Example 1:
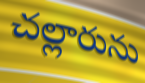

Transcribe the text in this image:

చల్లారును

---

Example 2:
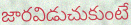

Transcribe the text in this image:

జారవిడుచుకుంటే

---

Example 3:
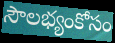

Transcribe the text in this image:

సౌలభ్యంకోసం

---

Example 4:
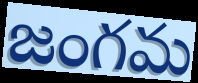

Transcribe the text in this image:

జంగమ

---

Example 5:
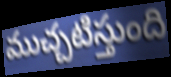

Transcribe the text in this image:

ముచ్చటిస్తుంది